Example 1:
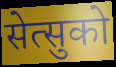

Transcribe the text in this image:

सेत्सुको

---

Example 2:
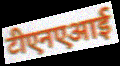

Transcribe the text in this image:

टीएनएआई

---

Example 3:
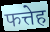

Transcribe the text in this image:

फत्तेह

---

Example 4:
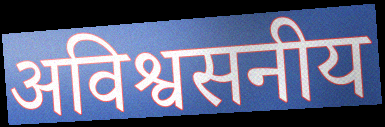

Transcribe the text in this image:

अविश्वसनीय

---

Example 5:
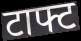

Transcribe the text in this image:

टाफ्ट